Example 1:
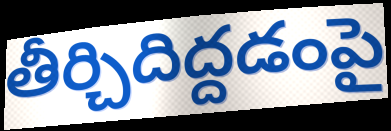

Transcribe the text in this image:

తీర్చిదిద్దడంపై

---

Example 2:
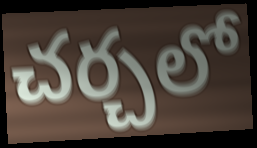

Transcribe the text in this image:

చర్చలో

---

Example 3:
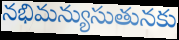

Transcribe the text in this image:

నభిమన్యుసుతునకు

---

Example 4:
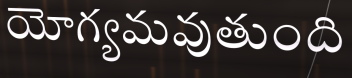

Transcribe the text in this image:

యోగ్యమవుతుంది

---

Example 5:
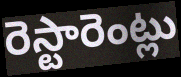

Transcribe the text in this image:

రెస్టారెంట్లు